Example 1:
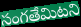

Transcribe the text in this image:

సంగతేమిటని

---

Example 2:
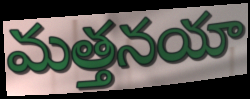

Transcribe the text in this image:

మత్తనయా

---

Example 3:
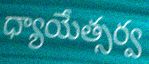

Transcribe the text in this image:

ధ్యాయేత్సర్వ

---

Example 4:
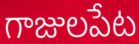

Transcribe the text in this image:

గాజులపేట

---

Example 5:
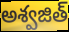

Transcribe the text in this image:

అశ్వజిత్